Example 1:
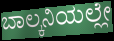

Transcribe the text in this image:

ಬಾಲ್ಕನಿಯಲ್ಲೇ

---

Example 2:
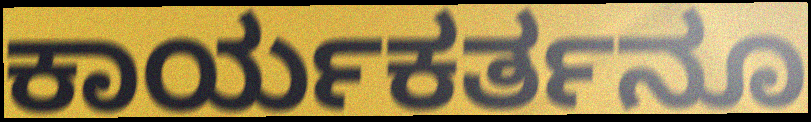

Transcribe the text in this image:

ಕಾರ್ಯಕರ್ತನೂ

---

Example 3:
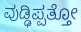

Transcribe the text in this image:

ವುಡ್ಢಿಪ್ಪತ್ತೋ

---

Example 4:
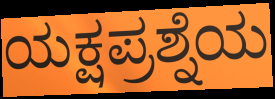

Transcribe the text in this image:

ಯಕ್ಷಪ್ರಶ್ನೆಯ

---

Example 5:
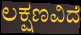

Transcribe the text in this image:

ಲಕ್ಷಣವಿದೆ